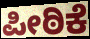
ಪೀಠಿಕೆ